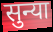
सुन्या